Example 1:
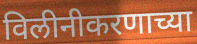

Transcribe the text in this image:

विलीनीकरणाच्या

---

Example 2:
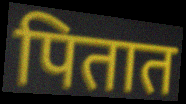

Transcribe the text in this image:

पितात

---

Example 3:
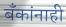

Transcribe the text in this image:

बँकांनाही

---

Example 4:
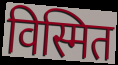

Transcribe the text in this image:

विस्मित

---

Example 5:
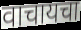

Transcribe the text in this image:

वाचायचा